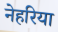
नेहरिया